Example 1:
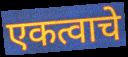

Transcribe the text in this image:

एकत्वाचे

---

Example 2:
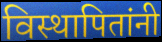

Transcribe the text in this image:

विस्थापितांनी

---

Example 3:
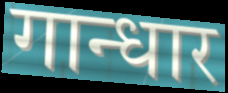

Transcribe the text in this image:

गान्धार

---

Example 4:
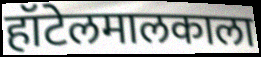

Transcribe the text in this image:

हॉटेलमालकाला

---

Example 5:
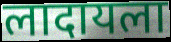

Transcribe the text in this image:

लादायला